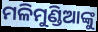
ମଳିମୁଣ୍ଡିଆଙ୍କୁ